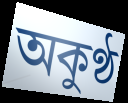
অকুণ্ঠ